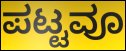
ಪಟ್ಟವೂ